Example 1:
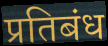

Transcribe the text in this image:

प्रतिबंध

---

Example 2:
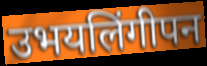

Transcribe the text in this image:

उभयलिंगीपन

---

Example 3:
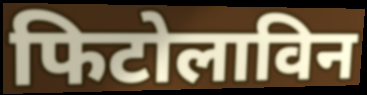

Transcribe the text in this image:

फिटोलाविन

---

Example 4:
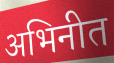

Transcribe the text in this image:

अभिनीत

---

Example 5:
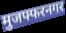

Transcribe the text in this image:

मुजफ्फरनगर